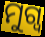
ମୁଗ୍ୱ